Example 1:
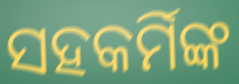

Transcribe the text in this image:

ସହକର୍ମିଙ୍କ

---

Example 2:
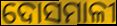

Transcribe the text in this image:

ଦୋସମାଳୀ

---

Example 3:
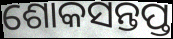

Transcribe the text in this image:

ଶୋକସନ୍ତପ୍ତ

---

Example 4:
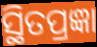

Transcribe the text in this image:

ସ୍ଥିତପ୍ରଜ୍ଞା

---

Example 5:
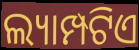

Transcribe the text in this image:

ଲ୍ୟାମ୍ପଟିଏ